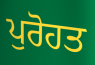
ਪੁਰੋਹਤ